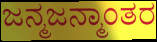
ಜನ್ಮಜನ್ಮಾಂತರ